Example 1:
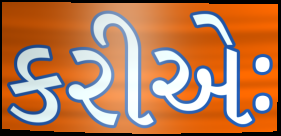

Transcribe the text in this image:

કરીએઃ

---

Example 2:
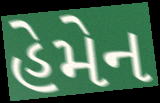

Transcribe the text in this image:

હેમેન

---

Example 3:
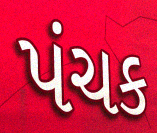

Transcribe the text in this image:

પંચક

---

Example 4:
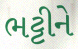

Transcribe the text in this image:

ભટ્ટીને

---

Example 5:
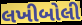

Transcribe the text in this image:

લખીબોલી